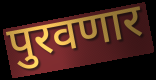
पुरवणार